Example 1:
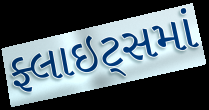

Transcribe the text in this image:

ફ્લાઇટ્સમાં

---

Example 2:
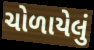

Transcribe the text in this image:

ચોળાયેલું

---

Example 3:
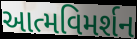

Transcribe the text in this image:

આત્મવિમર્શન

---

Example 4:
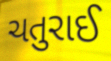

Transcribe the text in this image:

ચતુરાઈ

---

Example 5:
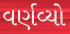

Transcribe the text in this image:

વર્ણવ્યો